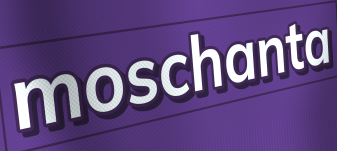
moschanta